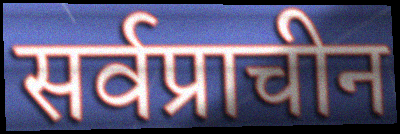
सर्वप्राचीन